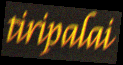
tiripalai